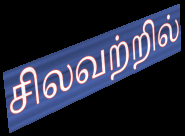
சிலவற்றில்